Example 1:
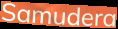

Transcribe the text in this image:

Samudera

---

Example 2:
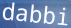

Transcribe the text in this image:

dabbi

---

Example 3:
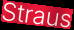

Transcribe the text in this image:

Straus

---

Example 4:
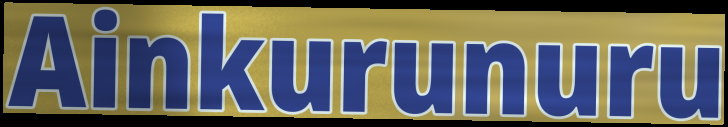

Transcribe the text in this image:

Ainkurunuru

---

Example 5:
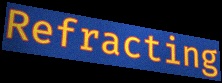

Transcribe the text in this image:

Refracting